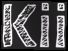
Kii